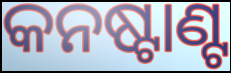
କନଷ୍ଟାଣ୍ଟ